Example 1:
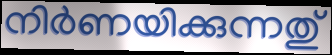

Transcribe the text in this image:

നിർണയിക്കുന്നതു്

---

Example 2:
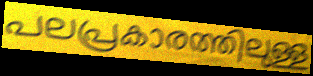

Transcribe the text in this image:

പലപ്രകാരത്തിലുള്ള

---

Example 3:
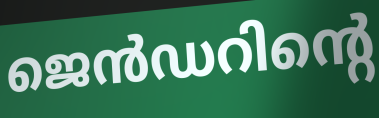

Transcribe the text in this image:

ജെൻഡറിന്റെ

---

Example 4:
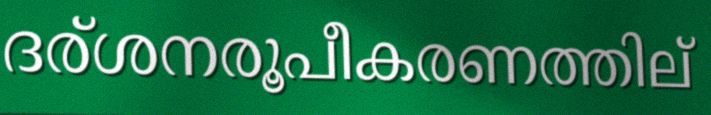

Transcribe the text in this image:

ദര്ശനരൂപീകരണത്തില്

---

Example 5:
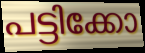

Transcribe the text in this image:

പട്ടിക്കോ